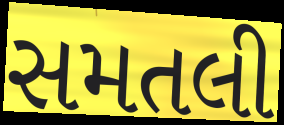
સમતલી